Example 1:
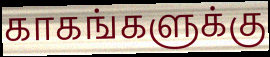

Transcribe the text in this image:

காகங்களுக்கு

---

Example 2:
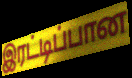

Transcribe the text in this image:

இரட்டிப்பான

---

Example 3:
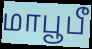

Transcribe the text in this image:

மாபூபீ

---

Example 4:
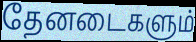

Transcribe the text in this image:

தேனடைகளும்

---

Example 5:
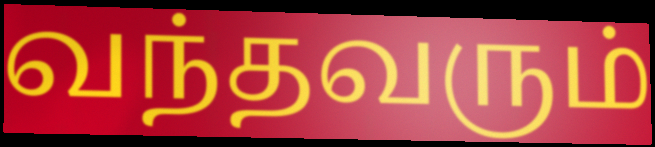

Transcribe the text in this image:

வந்தவரும்